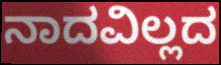
ನಾದವಿಲ್ಲದ